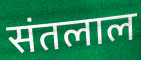
संतलाल